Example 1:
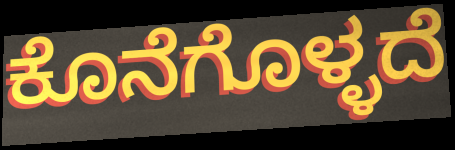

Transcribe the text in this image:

ಕೊನೆಗೊಳ್ಳದೆ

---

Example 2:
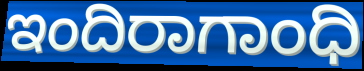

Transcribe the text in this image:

ಇಂದಿರಾಗಾಂಧಿ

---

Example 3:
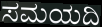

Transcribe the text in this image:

ಸಮಯದಿ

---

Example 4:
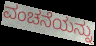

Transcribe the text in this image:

ವಂಚನೆಯನ್ನು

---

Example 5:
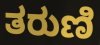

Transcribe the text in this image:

ತರುಣಿ